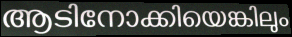
ആടിനോക്കിയെങ്കിലും